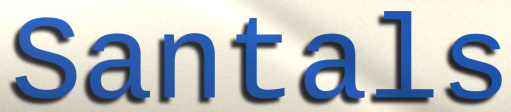
Santals